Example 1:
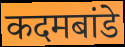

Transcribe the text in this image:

कदमबांडे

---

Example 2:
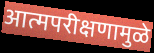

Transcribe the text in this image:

आत्मपरीक्षणामुळे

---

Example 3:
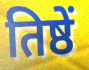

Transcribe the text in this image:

तिष्ठें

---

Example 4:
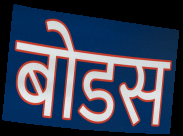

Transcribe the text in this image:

बोडस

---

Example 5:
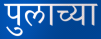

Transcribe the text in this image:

पुलाच्या